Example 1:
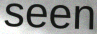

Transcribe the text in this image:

seen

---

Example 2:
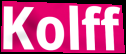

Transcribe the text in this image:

Kolff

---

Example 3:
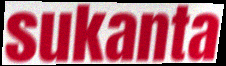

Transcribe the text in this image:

sukanta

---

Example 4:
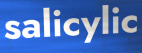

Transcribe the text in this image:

salicylic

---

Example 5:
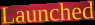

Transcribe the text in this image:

Launched